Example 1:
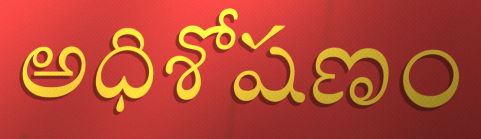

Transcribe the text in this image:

అధిశోషణం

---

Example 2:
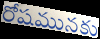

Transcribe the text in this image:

రోషమునకు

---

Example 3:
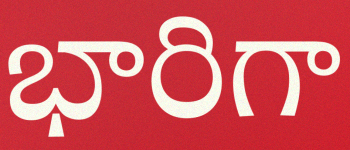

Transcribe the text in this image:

భారిగా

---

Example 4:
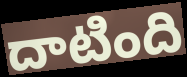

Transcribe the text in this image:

దాటింది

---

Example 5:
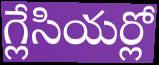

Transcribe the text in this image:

గ్లేసియర్లో